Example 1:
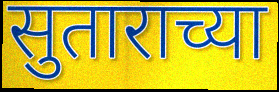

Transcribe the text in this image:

सुताराच्या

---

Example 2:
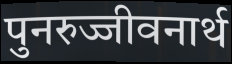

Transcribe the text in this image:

पुनरुज्जीवनार्थ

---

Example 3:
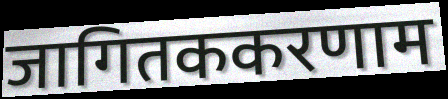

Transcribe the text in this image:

जागितककरणाम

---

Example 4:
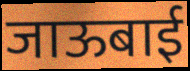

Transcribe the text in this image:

जाऊबाई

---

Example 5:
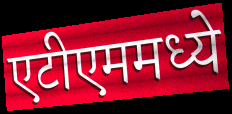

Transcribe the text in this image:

एटीएममध्ये